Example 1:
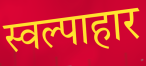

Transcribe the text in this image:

स्‍वल्‍पाहार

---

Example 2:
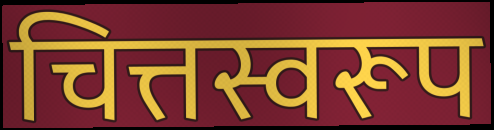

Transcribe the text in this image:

चित्तस्वरूप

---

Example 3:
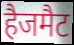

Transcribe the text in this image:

हैजमैट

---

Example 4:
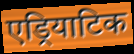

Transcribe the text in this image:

एड्रियाटिक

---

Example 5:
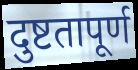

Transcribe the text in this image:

दुष्टतापूर्ण